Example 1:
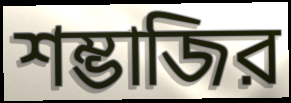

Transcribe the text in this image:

শম্ভাজির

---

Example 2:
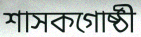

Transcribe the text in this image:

শাসকগোষ্ঠী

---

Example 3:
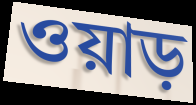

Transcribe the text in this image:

ওয়াড়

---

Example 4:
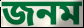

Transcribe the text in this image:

জনম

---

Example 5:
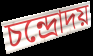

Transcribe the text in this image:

চন্দ্রোদয়